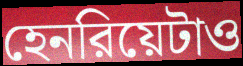
হেনরিয়েটাও